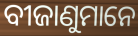
ବୀଜାଣୁମାନେ